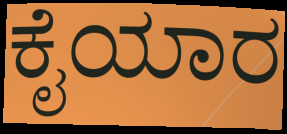
ಕೈಯಾರ